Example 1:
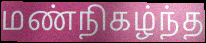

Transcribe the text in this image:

மண்நிகழ்ந்த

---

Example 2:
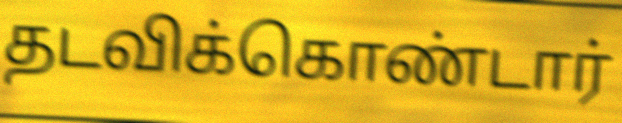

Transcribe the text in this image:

தடவிக்கொண்டார்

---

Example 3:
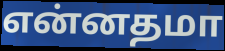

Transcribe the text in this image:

என்னதமா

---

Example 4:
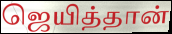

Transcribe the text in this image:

ஜெயித்தான்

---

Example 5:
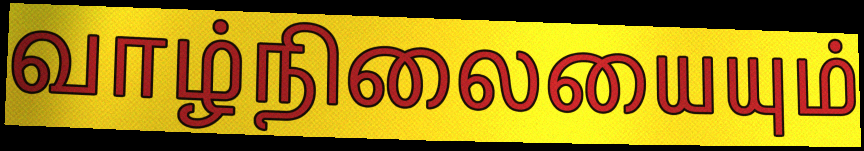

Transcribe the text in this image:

வாழ்நிலையையும்